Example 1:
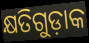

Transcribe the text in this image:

କ୍ଷତିଗୁଡ଼ାକ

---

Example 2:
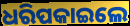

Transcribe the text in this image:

ଧରିପକାଇଲେ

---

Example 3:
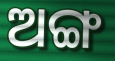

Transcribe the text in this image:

ଅଙ୍ଗ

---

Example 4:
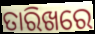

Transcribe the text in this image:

ତାରିଖରେ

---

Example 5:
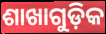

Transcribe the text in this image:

ଶାଖାଗୁଡ଼ିକ